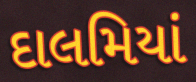
દાલમિયાં